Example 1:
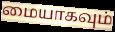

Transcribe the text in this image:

மையாகவும்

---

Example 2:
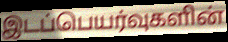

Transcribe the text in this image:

இடப்பெயர்வுகளின்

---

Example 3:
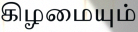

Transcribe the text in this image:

கிழமையும்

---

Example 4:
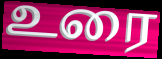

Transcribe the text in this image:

உரை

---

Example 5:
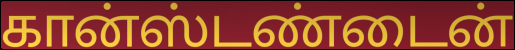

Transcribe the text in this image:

கான்ஸ்டண்டைன்